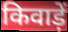
किवाड़ें